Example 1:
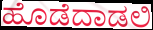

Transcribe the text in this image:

ಹೊಡೆದಾಡಲಿ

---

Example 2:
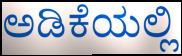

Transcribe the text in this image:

ಅಡಿಕೆಯಲ್ಲಿ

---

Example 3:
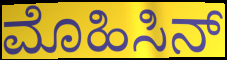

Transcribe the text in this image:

ಮೊಹಿಸಿನ್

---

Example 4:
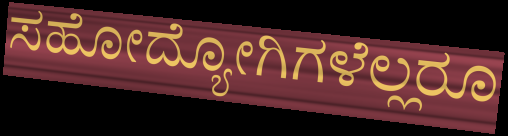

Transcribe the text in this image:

ಸಹೋದ್ಯೋಗಿಗಳೆಲ್ಲರೂ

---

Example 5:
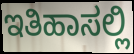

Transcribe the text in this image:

ಇತಿಹಾಸಲ್ಲಿ